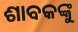
ଶାବକଙ୍କୁ